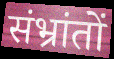
संभ्रांतों